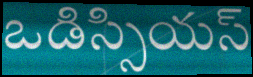
ఒడిస్సియస్